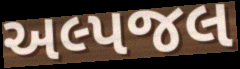
અલ્પજલ